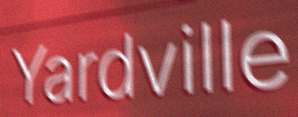
Yardville